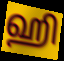
ஹி